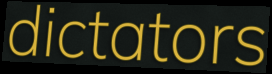
dictators